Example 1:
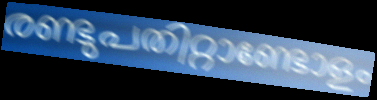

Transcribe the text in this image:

രണ്ടുപതിറ്റാണ്ടോളം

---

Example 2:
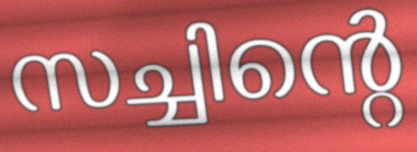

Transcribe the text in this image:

സച്ചിന്റെ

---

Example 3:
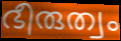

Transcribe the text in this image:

ഭീരുത്വം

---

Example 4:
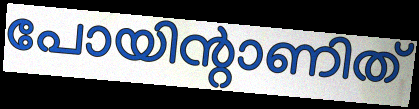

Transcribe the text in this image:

പോയിന്റാണിത്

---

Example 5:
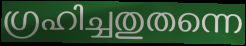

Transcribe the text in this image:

ഗ്രഹിച്ചതുതന്നെ